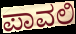
ಪಾವಲಿ